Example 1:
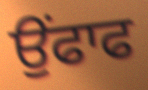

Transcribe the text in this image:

ਉੰਫਾਫ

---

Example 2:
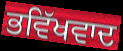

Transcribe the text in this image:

ਭਵਿੱਖਵਾਦ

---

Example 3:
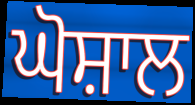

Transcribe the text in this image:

ਘੋਸ਼ਾਲ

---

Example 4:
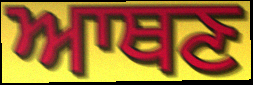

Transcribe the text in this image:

ਆਥਣ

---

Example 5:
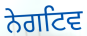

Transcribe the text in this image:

ਨੇਗਟਿਵ